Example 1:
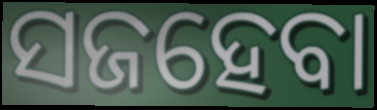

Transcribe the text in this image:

ସଜହେବା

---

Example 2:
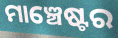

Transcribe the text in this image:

ମାଞ୍ଚେଷ୍ଟର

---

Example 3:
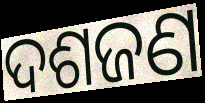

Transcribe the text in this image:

ଦଶଜଣ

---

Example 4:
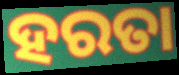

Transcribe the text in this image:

ହରତା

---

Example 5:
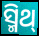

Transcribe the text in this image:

ସ୍ମିଥ୍